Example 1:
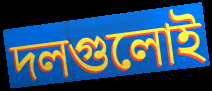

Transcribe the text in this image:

দলগুলোই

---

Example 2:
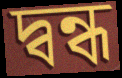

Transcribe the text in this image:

দ্বন্ধ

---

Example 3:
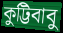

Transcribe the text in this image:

কুট্টিবাবু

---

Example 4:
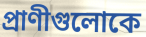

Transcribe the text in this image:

প্রাণীগুলোকে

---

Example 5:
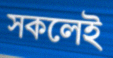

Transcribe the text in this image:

সকলেই